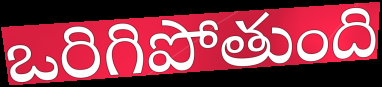
ఒరిగిపోతుంది